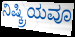
ನಿಷ್ಕ್ರಿಯವೂ